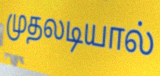
முதலடியால்